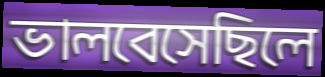
ভালবেসেছিলে